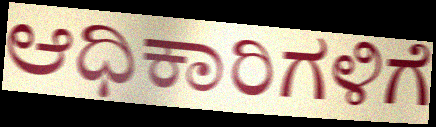
ಆಧಿಕಾರಿಗಳಿಗೆ